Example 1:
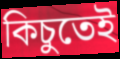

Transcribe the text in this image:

কিচুতেই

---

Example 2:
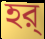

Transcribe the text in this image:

হর্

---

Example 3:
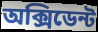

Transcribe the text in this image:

অক্সিডেন্ট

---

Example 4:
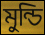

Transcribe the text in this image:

মুন্ডি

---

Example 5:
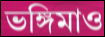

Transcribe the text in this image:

ভঙ্গিমাও